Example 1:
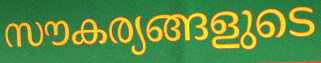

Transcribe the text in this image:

സൗകര്യങ്ങളുടെ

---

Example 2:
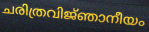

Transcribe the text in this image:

ചരിത്രവിജ്‌ഞാനീയം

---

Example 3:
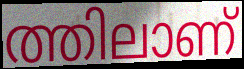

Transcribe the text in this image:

ത്തിലാണ്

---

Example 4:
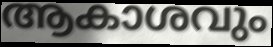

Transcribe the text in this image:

ആകാശവും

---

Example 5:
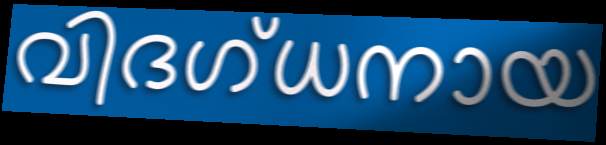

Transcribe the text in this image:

വിദഗ്ധനായ